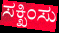
ಸಕ್ಖಿಂಸು